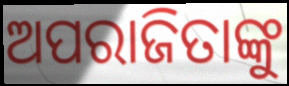
ଅପରାଜିତାଙ୍କୁ